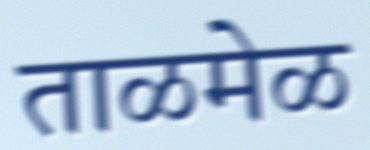
ताळमेळ